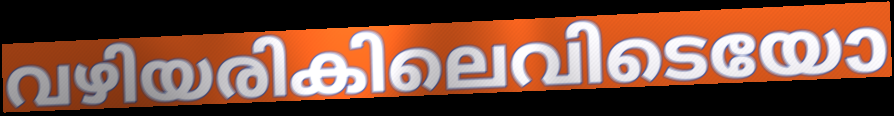
വഴിയരികിലെവിടെയോ